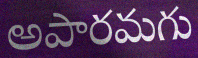
అపారమగు